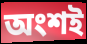
অংশই